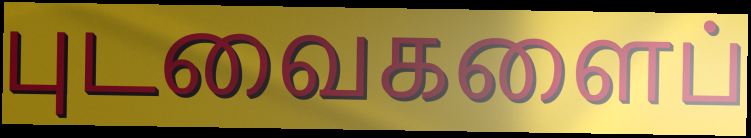
புடவைகளைப்